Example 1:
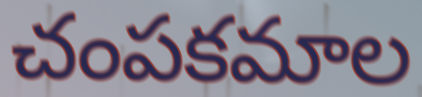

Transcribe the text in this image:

చంపకమాల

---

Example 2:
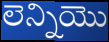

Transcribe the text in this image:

లెన్నియొ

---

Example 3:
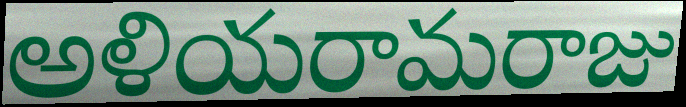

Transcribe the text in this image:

అళియరామరాజు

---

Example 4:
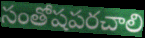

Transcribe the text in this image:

సంతోషపరచాలి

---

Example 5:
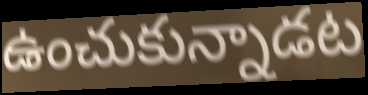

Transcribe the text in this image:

ఉంచుకున్నాడట